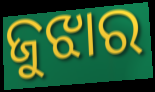
ଜୁଝାର